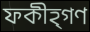
ফকীহ্গণ